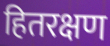
हितरक्षण